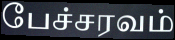
பேச்சரவம்